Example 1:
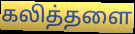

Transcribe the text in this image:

கலித்தளை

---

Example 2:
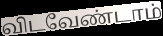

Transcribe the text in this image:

விடவேண்டாம்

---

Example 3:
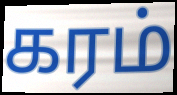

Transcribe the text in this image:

கரம்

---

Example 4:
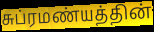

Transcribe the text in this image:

சுப்ரமண்யத்தின்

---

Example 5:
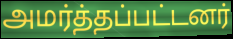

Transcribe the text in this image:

அமர்த்தப்பட்டனர்